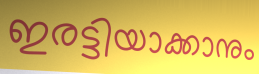
ഇരട്ടിയാക്കാനും